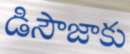
డిసౌజాకు